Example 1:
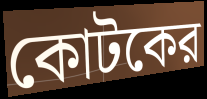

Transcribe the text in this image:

কোটকের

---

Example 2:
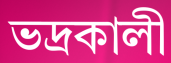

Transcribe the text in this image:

ভদ্রকালী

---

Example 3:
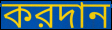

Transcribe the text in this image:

করদান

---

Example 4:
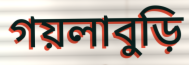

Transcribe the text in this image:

গয়লাবুড়ি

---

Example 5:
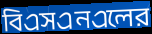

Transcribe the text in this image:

বিএসএনএলের